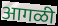
आगळी